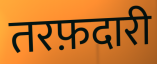
तरफ़दारी